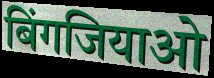
बिंगजियाओ